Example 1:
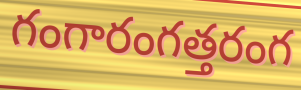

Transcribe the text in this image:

గంగారంగత్తరంగ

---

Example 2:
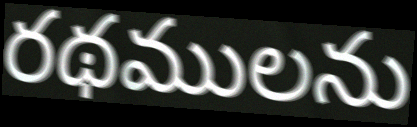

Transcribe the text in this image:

రథములను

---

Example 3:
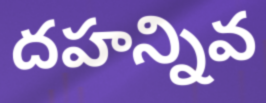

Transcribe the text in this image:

దహన్నివ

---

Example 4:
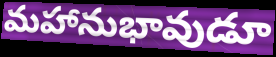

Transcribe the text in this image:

మహానుభావుడూ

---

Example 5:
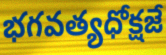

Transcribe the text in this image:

భగవత్యధోక్షజే